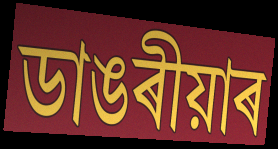
ডাঙৰীয়াৰ